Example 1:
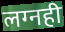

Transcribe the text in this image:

लग्नही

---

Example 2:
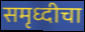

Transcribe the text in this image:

समृध्दीचा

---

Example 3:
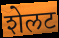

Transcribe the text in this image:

शेलट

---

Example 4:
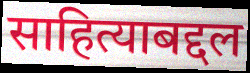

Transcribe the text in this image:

साहित्याबद्दल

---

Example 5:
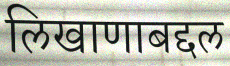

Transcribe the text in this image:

लिखाणाबद्दल